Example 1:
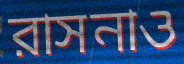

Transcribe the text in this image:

রাসনাও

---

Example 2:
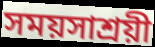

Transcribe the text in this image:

সময়সাশ্রয়ী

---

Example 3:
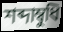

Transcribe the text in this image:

শব্দাম্বুধি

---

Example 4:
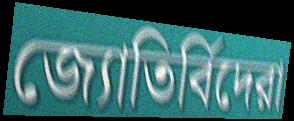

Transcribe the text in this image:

জ্যোতির্বিদেরা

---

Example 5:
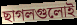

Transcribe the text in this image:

ছাগলগুলোই